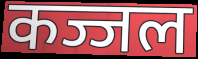
कज्जल